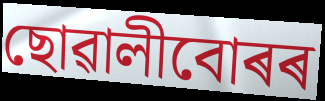
ছোৱালীবোৰৰ